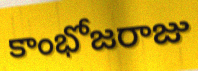
కాంభోజరాజు